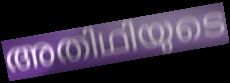
അതിഥിയുടെ